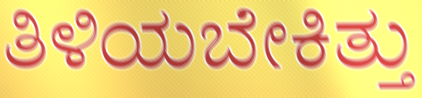
ತಿಳಿಯಬೇಕಿತ್ತು